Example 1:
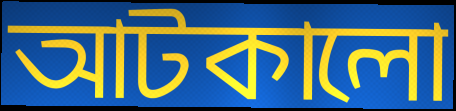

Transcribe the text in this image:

আটকালো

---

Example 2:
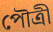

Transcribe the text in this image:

পৌত্রী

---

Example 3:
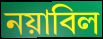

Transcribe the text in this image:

নয়াবিল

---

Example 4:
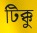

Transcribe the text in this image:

টিক্কু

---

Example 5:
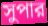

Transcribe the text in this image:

সুপার